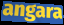
angara